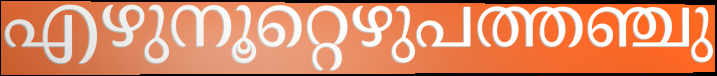
എഴുനൂറ്റെഴുപത്തഞ്ചു